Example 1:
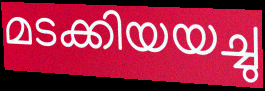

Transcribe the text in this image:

മടക്കിയയച്ചു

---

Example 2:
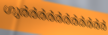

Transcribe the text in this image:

ഗുർർർർർർർർർർർ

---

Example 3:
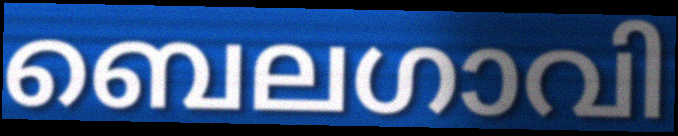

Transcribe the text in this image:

ബെലഗാവി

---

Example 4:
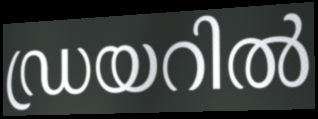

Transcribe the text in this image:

ഡ്രയറിൽ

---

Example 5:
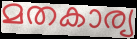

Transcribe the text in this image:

മതകാര്യ